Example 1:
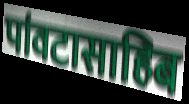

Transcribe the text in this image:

पांवटासाहिब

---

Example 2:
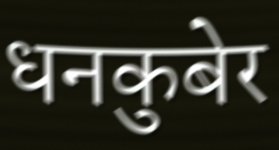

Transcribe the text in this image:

धनकुबेर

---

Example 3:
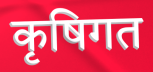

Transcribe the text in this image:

कृषिगत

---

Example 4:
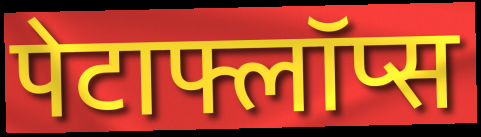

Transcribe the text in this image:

पेटाफ्लॉप्स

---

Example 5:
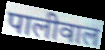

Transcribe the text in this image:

पालीवाल